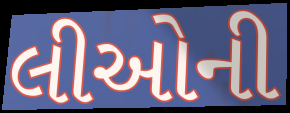
લીઓની